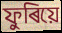
ফুৰিয়ে